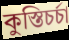
কুস্তিচর্চা